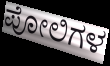
ಪೋಲಿಗಳ